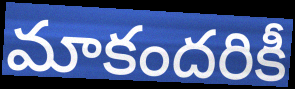
మాకందరికీ